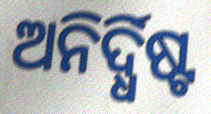
ଅନିର୍ଦ୍ଧିଷ୍ଟ